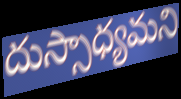
దుస్సాధ్యమని